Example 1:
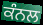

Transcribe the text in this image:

ਕੰਨਲ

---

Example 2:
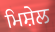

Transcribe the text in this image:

ਮਿਸ਼ੇਲ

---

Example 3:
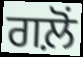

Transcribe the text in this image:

ਗਲ਼ੋਂ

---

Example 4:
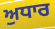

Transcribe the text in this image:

ਅੁਧਾਰ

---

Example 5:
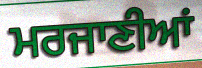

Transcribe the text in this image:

ਮਰਜਾਣੀਆਂ